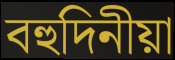
বহুদিনীয়া